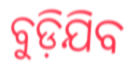
ବୁଡ଼ିଯିବ